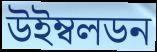
উইম্বলডন